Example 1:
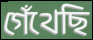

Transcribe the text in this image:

গেঁথেছি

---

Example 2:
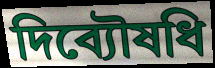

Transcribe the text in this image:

দিব্যৌষধি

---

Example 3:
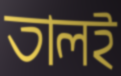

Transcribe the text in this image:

তালই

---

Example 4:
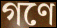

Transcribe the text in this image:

গণে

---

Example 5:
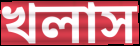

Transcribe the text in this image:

খলাস